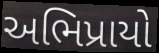
અભિપ્રાયો